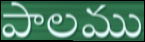
పాలము